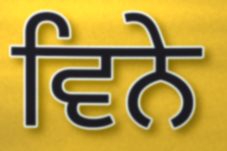
ਵਿਨੇ